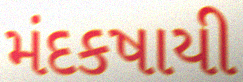
મંદકષાયી